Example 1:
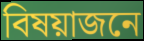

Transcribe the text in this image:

বিষয়াজনে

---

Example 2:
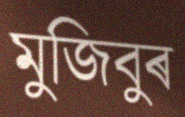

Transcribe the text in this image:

মুজিবুৰ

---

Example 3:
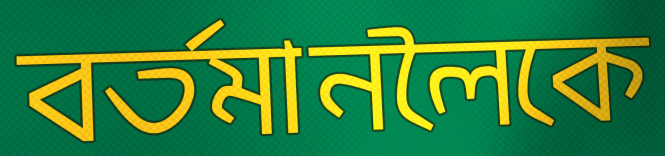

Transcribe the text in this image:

বৰ্তমানলৈকে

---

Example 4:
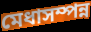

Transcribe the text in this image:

মেধাসম্পন্ন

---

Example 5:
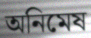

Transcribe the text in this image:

অনিমেষ